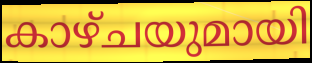
കാഴ്ചയുമായി